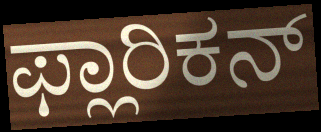
ಫ್ಲಾರಿಕನ್